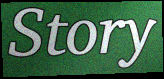
Story